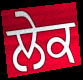
ਲੇਕ